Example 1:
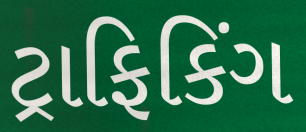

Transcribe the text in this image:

ટ્રાફિકિંગ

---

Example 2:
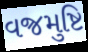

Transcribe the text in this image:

વજ્રમુષ્ટિ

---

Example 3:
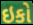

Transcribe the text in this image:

ઇકો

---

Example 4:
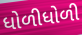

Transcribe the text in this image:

ધોળીધોળી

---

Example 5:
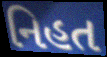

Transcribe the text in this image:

નિહત